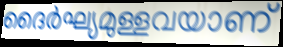
ദൈർഘ്യമുള്ളവയാണ്